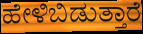
ಹೇಳಿಬಿಡುತ್ತಾರೆ